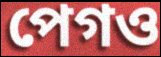
পেগও